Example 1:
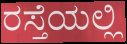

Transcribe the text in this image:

ರಸ್ತೆಯಲ್ಲಿ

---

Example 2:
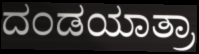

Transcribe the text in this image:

ದಂಡಯಾತ್ರಾ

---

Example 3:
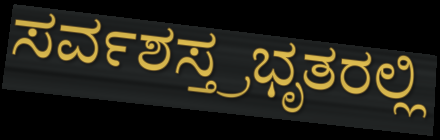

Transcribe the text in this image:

ಸರ್ವಶಸ್ತ್ರಭೃತರಲ್ಲಿ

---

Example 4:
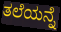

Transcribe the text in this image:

ತಲೆಯನ್ನೆ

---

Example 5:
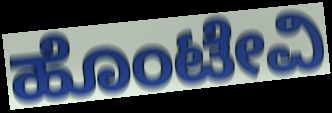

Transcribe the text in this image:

ಹೊಂಟೇವಿ